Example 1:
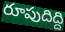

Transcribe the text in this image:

రూపుదిద్ది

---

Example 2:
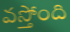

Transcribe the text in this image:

వస్తోంది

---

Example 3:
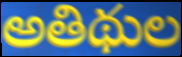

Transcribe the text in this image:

అతిథుల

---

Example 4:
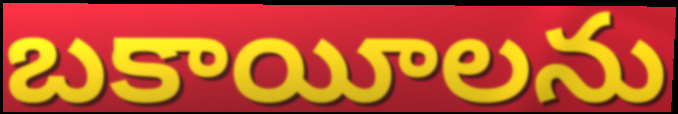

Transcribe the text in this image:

బకాయీలను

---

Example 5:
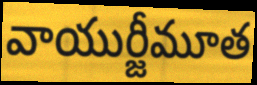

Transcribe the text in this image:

వాయుర్జీమూత